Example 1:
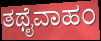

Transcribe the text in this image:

ತಥೈವಾಹಂ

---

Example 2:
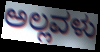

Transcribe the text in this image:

ಅಲ್ಲವಳು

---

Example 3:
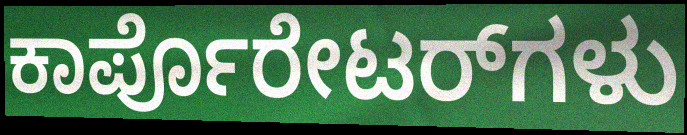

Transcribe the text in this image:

ಕಾರ್ಪೊರೇಟರ್‌ಗಳು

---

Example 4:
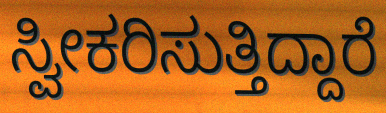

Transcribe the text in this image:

ಸ್ವೀಕರಿಸುತ್ತಿದ್ದಾರೆ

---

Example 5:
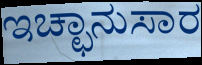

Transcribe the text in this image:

ಇಚ್ಛಾನುಸಾರ